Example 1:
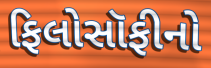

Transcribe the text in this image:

ફિલોસૉફીનો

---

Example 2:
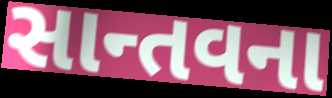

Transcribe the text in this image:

સાન્તવના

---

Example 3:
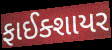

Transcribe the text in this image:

ફાઈક્શાયર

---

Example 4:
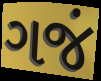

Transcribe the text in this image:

ગજં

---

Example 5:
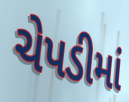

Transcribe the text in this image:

ચેપડીમાં